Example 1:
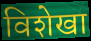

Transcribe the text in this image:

विशेखा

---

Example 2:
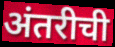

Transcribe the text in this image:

अंतरीची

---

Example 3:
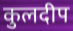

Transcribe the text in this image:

कुलदीप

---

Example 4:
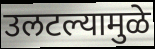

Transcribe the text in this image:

उलटल्यामुळे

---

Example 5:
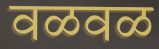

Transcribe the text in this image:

वळवळ